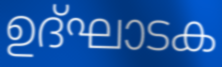
ഉദ്ഘാടക